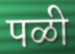
पळी